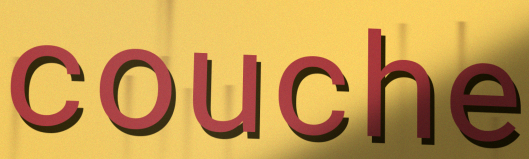
couche